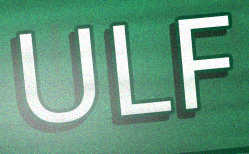
ULF